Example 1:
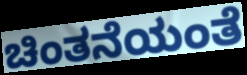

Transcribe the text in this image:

ಚಿಂತನೆಯಂತೆ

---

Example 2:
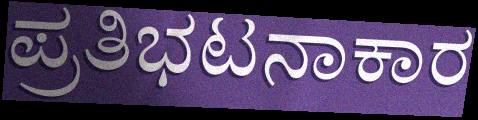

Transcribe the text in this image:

ಪ್ರತಿಭಟನಾಕಾರ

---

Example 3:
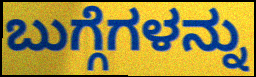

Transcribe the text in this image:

ಬುಗ್ಗೆಗಳನ್ನು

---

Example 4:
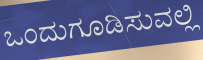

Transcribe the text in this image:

ಒಂದುಗೂಡಿಸುವಲ್ಲಿ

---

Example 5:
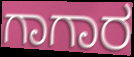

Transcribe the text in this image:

ಗಾಗಾರ